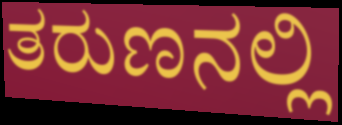
ತರುಣನಲ್ಲಿ